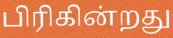
பிரிகின்றது